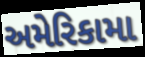
અમેરિકામા